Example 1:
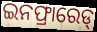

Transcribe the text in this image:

ଇନଫ୍ରାରେଡ୍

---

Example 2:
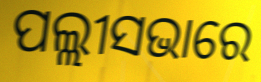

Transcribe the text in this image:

ପଲ୍ଲୀସଭାରେ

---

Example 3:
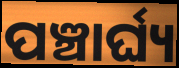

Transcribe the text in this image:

ପଞ୍ଚାର୍ଘ୍ୟ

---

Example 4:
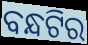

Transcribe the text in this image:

ବନ୍ଧଟିର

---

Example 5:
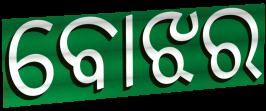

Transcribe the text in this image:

ବୋଝର